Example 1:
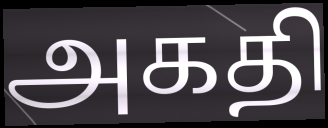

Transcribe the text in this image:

அகதி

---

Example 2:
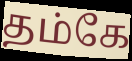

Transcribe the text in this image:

தம்கே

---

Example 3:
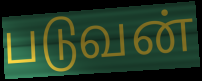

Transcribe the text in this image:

படுவன்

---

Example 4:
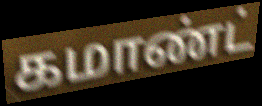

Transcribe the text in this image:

கமாண்ட்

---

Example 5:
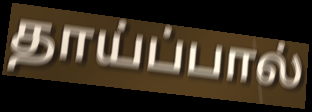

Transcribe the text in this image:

தாய்ப்பால்